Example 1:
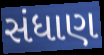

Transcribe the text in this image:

સંધાણ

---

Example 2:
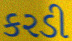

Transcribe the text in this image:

કરડી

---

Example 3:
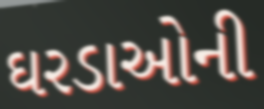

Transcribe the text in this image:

ઘરડાઓની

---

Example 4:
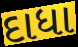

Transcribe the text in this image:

દાધા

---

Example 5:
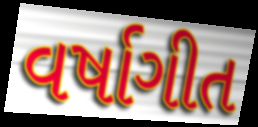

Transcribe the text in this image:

વર્ષાગીત